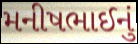
મનીષભાઈનું